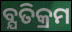
ବ୍ଯତିକ୍ରମ